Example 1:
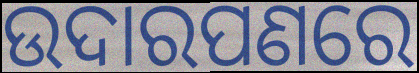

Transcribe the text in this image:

ଉଦାରପଣରେ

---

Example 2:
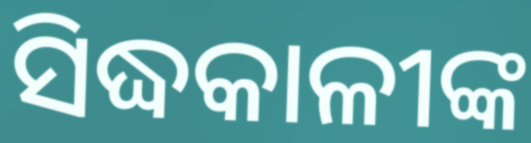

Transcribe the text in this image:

ସିଦ୍ଧକାଳୀଙ୍କ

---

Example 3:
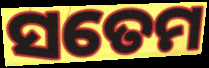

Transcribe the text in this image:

ସତେମ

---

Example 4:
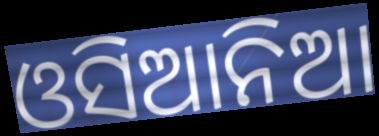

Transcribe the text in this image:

ଓସିଆନିଆ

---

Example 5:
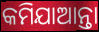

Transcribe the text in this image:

କମିଯାଆନ୍ତା